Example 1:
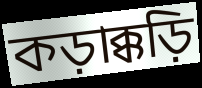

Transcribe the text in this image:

কড়াক্কড়ি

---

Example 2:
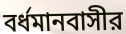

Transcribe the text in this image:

বর্ধমানবাসীর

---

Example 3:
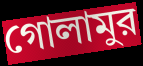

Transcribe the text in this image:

গোলামুর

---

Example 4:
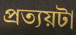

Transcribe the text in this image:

প্রত্যয়টা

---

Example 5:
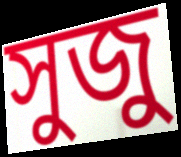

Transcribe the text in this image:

সুজু